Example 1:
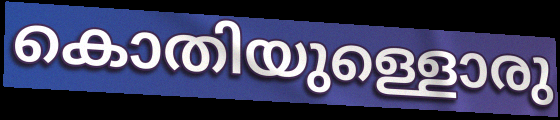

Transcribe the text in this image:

കൊതിയുള്ളൊരു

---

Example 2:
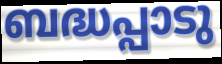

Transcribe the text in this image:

ബദ്ധപ്പാടു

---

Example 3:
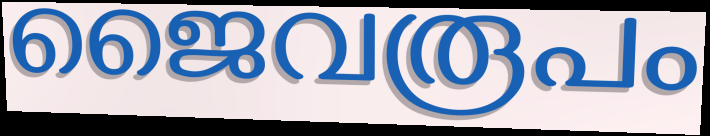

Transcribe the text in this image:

ജൈവരൂപം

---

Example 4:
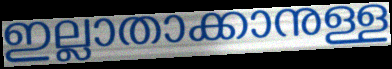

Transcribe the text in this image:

ഇല്ലാതാക്കാനുള്ള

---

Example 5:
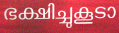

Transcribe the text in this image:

ഭക്ഷിച്ചുകൂടാ